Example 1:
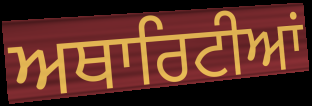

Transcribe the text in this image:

ਅਥਾਰਿਟੀਆਂ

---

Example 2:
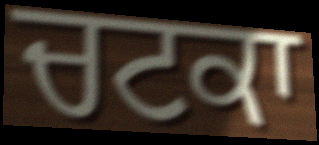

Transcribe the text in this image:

ਚਟਕਾ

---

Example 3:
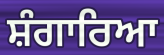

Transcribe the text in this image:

ਸ਼ੰਗਾਰਿਆ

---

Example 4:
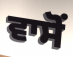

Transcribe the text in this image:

ਵਾਸੋਂ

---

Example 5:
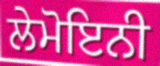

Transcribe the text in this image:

ਲੇਮੋਇਨੀ